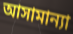
আসামান্যা